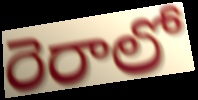
రెరాలో